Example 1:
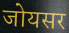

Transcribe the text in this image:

जोयसर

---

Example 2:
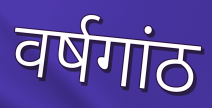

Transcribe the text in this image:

वर्षगांठ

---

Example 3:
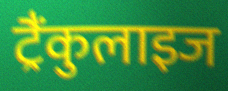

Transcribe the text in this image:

ट्रैंकुलाइज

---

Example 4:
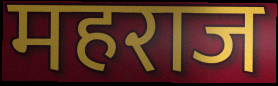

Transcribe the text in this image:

महराज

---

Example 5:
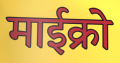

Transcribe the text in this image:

माईक्रो